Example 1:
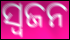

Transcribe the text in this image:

ସ୍ୱଜନ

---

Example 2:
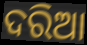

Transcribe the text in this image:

ଦରିଆ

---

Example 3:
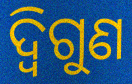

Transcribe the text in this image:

ଦ୍ୱିଗୁଣ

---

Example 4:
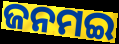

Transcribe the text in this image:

ଜନମଇ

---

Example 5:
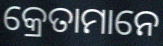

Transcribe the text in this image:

କ୍ରେତାମାନେ